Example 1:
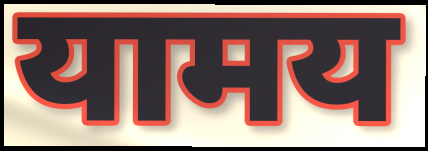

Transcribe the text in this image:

यामय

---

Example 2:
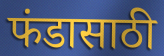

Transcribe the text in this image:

फंडासाठी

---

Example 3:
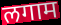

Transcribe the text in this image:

लगाम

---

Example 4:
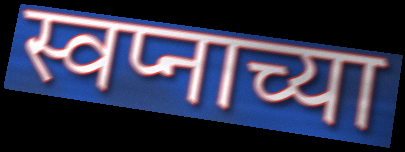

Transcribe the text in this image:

स्वप्नाच्या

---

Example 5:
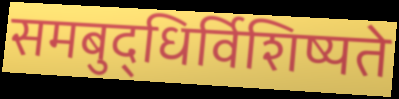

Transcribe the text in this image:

समबुद्धिर्विशिष्यते